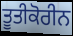
ਤੂਤੀਕੋਰੀਨ